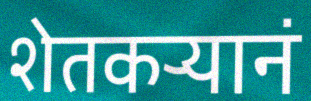
शेतकऱ्यानं